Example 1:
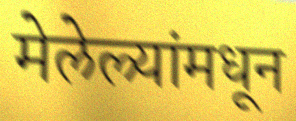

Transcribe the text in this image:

मेलेल्यांमधून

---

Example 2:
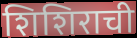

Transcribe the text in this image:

शिशिराची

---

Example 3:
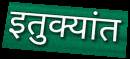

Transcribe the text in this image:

इतुक्यांत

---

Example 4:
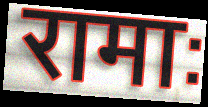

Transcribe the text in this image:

रामाः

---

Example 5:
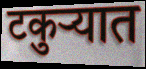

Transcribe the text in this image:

टकुर्‍यात